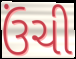
ઉંચી